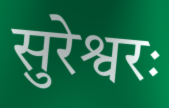
सुरेश्वरः